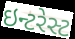
ઇન્ટરેસ્ટ